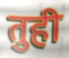
तुही